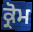
ਕ੍ਰੋਮ